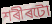
শৰীৰটো